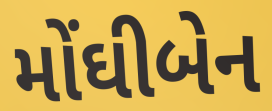
મોંઘીબેન